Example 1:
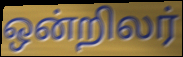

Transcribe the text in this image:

ஒன்றிலர்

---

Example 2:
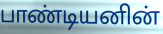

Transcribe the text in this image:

பாண்டியனின்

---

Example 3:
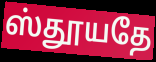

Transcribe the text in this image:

ஸ்தூயதே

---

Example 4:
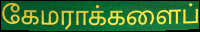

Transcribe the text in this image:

கேமராக்களைப்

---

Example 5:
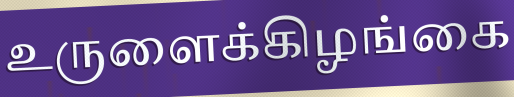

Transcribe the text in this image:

உருளைக்கிழங்கை